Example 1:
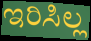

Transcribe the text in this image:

ಇರಿಸಿಲ್ಲ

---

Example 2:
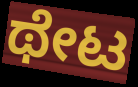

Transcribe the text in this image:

ಥೇಟ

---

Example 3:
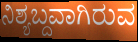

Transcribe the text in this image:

ನಿಶ್ಯಬ್ದವಾಗಿರುವ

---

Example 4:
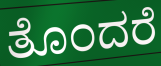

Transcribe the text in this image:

ತೊಂದರೆ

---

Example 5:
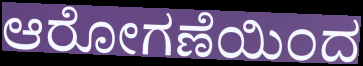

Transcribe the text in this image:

ಆರೋಗಣೆಯಿಂದ